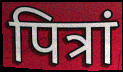
पित्रां